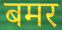
बमर